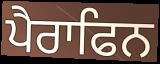
ਪੈਰਾਫਿਨ